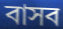
বাসব